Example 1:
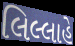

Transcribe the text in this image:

લિલ્લાહે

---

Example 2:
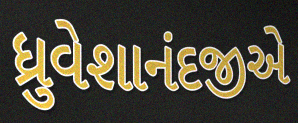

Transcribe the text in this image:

ધ્રુવેશાનંદજીએ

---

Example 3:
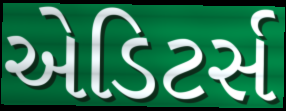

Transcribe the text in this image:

એડિટર્સ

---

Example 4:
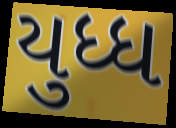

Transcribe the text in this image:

યુધ્ધ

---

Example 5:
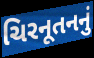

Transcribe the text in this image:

ચિરનૂતનનું